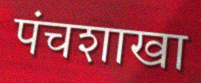
पंचशाखा